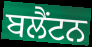
ਬਲੈਂਟਨ